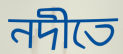
নদীতে